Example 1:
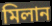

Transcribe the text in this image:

মিলান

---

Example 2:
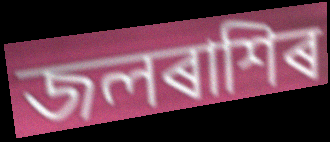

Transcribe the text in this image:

জলৰাশিৰ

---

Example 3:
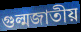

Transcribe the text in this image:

গুল্মজাতীয়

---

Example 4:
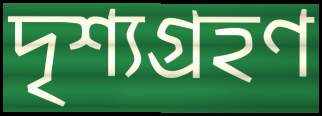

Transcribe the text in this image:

দৃশ্যগ্ৰহণ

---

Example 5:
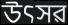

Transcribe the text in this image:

উৎসৱ